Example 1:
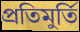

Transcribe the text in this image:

প্রতিমুর্তি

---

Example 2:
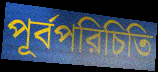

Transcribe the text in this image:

পূর্বপরিচিতি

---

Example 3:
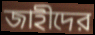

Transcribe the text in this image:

জাহীদের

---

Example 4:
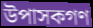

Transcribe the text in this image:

উপাসকগণ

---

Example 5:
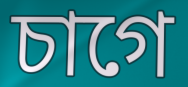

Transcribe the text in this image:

চাগে